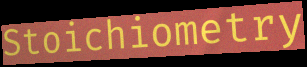
Stoichiometry